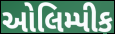
ઓલિમ્પીક